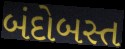
બંદોબસ્ત